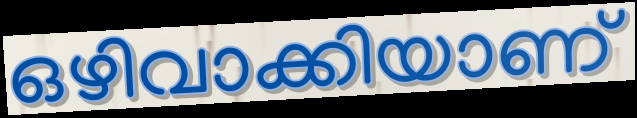
ഒഴിവാക്കിയാണ്